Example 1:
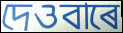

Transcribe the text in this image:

দেওবাৰে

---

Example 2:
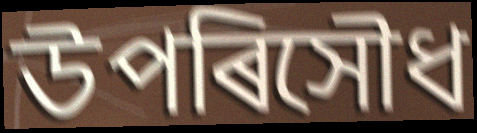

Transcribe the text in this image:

উপৰিসৌধ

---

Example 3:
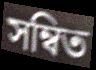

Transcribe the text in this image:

সম্বিত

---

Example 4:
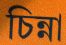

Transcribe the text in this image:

চিন্না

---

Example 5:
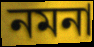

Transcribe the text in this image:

নমনা